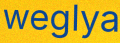
weglya